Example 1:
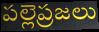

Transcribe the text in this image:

పల్లెప్రజలు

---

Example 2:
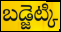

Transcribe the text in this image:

బడ్జెట్కి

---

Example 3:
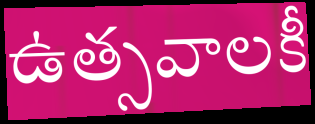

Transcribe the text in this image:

ఉత్సవాలకీ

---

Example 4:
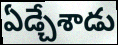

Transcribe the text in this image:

ఏడ్చేశాడు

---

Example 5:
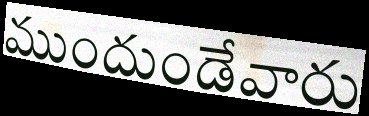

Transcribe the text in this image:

ముందుండేవారు